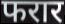
फरार